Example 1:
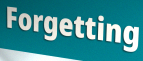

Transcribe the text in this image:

Forgetting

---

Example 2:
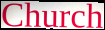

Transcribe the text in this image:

Church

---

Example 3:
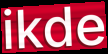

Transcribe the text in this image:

ikde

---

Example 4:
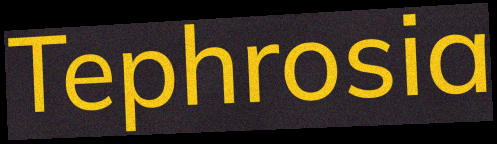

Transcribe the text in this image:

Tephrosia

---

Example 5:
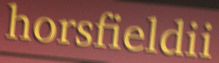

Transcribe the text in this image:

horsfieldii